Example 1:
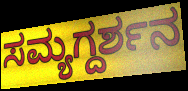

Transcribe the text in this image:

ಸಮ್ಯಗ್ದರ್ಶನ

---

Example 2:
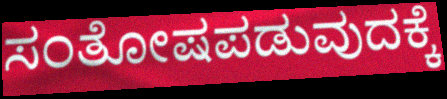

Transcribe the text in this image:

ಸಂತೋಷಪಡುವುದಕ್ಕೆ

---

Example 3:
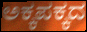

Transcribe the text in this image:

ಅಕ್ಕಪಕ್ಕದ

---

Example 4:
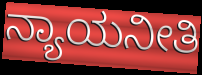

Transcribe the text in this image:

ನ್ಯಾಯನೀತಿ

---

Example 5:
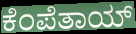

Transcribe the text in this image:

ಕೆಂಪೆತಾಯ್